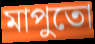
মাপুতো